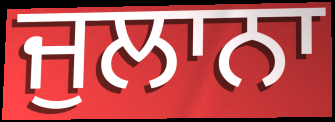
ਜੁਲਾਨਾ